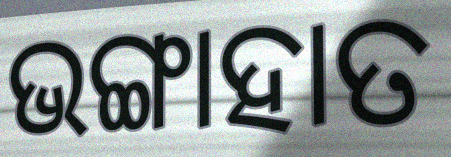
ଭଙ୍ଗାହାତ